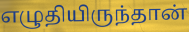
எழுதியிருந்தான்